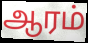
ஆரம்